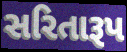
સરિતારૂપ